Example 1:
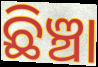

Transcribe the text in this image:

ଛିଞ୍ଚା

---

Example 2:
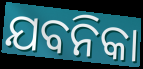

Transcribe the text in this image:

ଯବନିକା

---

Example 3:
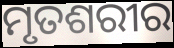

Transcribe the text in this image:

ମୃତଶରୀର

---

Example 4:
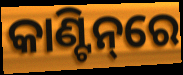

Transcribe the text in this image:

କାଣ୍ଟିନ୍‌ରେ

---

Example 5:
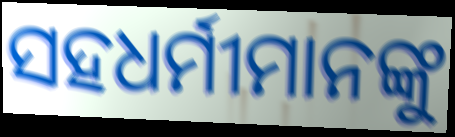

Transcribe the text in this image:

ସହଧର୍ମୀମାନଙ୍କୁ